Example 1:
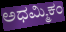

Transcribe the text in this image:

ಅಧಮ್ಮಿಕಂ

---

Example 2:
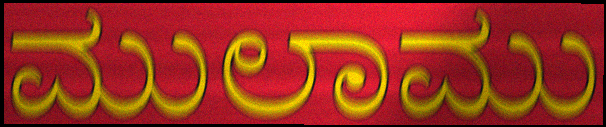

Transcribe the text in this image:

ಮುಲಾಮು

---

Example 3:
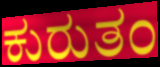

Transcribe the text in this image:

ಕುರುತಂ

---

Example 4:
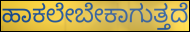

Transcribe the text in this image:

ಹಾಕಲೇಬೇಕಾಗುತ್ತದೆ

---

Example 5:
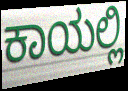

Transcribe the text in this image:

ಕಾಯಲ್ಲಿ